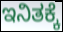
ಇನಿತಕ್ಕೆ